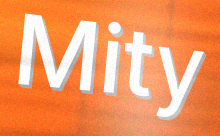
Mity